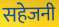
सहेजनी